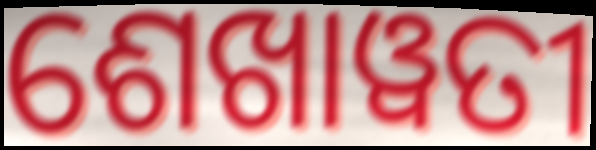
ଶେଖାୱତୀ